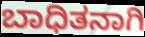
ಬಾಧಿತನಾಗಿ